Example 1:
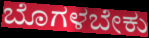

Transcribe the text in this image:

ಬೊಗಳಬೇಕು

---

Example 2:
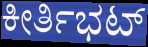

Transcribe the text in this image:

ಕೀರ್ತಿಭಟ್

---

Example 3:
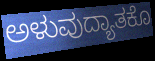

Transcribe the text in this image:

ಅಳುವುದ್ಯಾತಕೊ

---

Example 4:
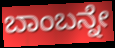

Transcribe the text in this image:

ಬಾಂಬನ್ನೇ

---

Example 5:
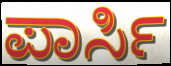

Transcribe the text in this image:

ಪಾರ್ಸಿ